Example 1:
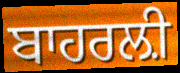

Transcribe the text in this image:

ਬਾਹਰਲ਼ੀ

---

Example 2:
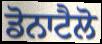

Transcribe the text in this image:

ਡੋਨਾਟੈਲੋ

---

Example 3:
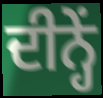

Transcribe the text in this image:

ਦੀਨ੍ਹੇਂ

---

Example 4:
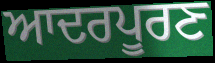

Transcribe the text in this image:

ਆਦਰਪੂਰਣ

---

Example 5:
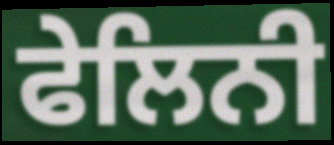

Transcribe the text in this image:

ਫੇਲਿਨੀ